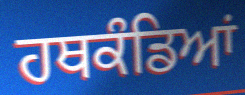
ਹਥਕੰਡਿਆਂ